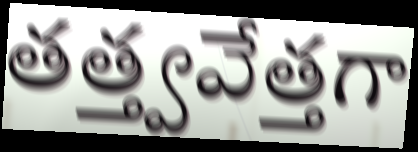
తత్త్వవేత్తగా